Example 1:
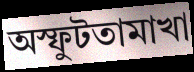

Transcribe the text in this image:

অস্ফুটতামাখা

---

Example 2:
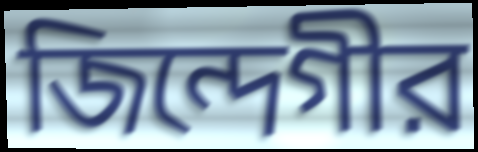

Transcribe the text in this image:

জিন্দেগীর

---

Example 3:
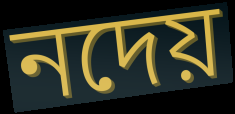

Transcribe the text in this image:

নদেয়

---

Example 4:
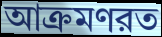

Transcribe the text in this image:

আক্রমণরত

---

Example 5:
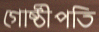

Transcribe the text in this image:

গোষ্ঠীপতি